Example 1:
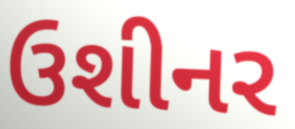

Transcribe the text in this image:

ઉશીનર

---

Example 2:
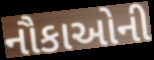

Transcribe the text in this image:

નૌકાઓની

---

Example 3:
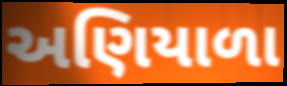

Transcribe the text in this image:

અણિયાળા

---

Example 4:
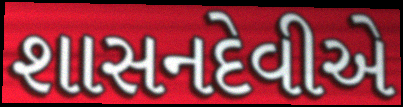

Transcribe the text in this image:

શાસનદેવીએ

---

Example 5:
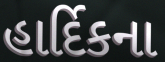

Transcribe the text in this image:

હાર્દિકના